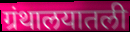
ग्रंथालयातली